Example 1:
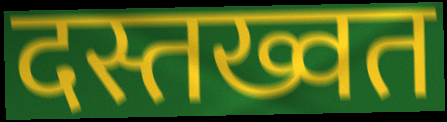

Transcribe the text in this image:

दस्तख्वत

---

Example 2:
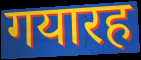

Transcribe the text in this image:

गयारह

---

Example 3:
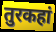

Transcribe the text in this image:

तुरकहां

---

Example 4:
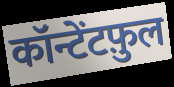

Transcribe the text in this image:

कॉन्टेंटफ़ुल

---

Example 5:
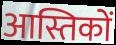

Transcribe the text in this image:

आस्तिकों